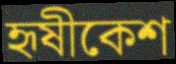
হৃষীকেশ